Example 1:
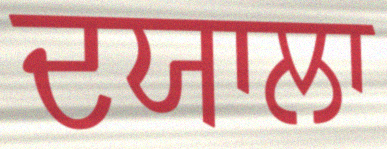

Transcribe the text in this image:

ਦਯਾਲਾ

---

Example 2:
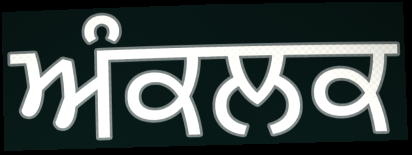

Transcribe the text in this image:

ਅੰਕਲਕ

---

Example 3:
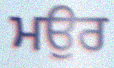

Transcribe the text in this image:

ਮਉਰ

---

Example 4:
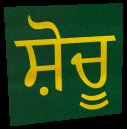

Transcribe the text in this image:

ਸ਼ੋਚੂ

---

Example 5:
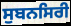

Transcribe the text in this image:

ਸੁਬਨਸਿਰੀ